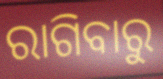
ରାଗିବାରୁ